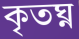
কৃতঘ্ন